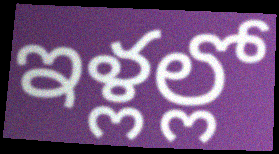
ఇళ్లల్లో